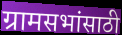
ग्रामसभांसाठी